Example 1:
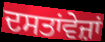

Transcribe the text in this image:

ਦਸਤਾਂਵੇਜ਼ਾਂ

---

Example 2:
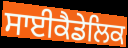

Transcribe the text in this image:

ਸਾਈਕੈਡੇਲਿਕ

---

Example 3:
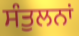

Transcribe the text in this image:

ਸੰਤੁਲਨਾਂ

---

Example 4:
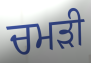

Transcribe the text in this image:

ਚਮਡ਼ੀ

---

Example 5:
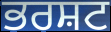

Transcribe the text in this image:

ਭਰਸ਼ਟ